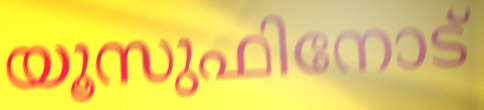
യൂസുഫിനോട്